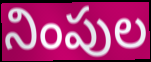
నింపుల